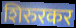
शिरुरकर